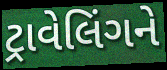
ટ્રાવેલિંગને